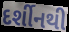
દર્શીનથી